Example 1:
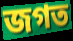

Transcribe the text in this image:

জগত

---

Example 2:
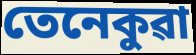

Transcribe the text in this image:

তেনেকুৱা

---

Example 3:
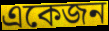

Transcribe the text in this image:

একেজন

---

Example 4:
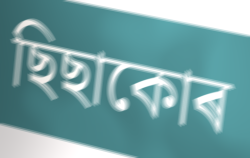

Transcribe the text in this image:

ছিছাকোৰ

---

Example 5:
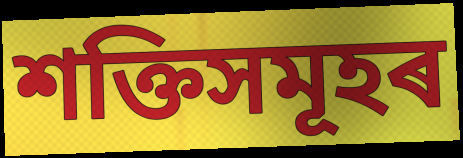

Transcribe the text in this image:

শক্তিসমূহৰ